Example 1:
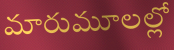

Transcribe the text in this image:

మారుమూలల్లో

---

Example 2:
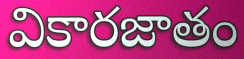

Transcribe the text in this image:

వికారజాతం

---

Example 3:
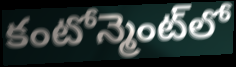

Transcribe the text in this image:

కంటోన్మెంట్‌లో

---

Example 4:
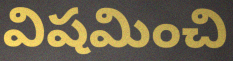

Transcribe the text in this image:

విషమించి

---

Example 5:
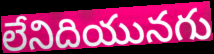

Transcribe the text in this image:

లేనిదియునగు